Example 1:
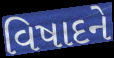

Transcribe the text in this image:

વિષાદને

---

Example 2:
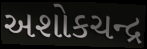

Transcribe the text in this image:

અશોકચન્દ્ર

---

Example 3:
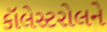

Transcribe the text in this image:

કૉલેસ્ટરોલને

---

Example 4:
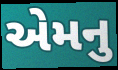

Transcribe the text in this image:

એમનુ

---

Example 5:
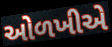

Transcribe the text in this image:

ઓળખીએ